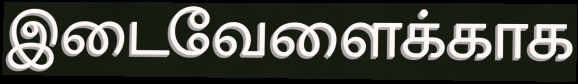
இடைவேளைக்காக